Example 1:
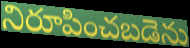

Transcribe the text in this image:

నిరూపించబడెను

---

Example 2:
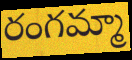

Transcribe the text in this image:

రంగమ్మా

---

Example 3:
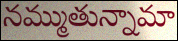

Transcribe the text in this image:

నమ్ముతున్నామా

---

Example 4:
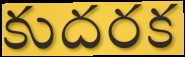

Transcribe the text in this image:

కుదరక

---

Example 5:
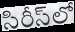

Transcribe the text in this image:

సిరీస్‌లో